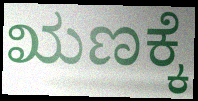
ಋಣಕ್ಕೆ